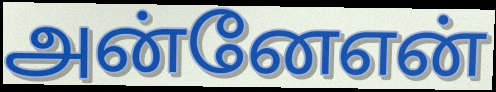
அன்னேஎன்